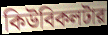
কিউবিকলটার